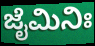
ಜೈಮಿನಿಃ